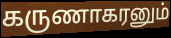
கருணாகரனும்